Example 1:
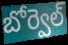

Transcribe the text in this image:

బోర్వెల్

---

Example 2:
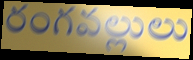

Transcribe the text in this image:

రంగవల్లులు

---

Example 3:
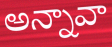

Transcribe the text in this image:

అన్నావా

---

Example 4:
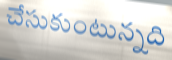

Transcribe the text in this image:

చేసుకుంటున్నది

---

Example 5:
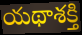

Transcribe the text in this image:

యథాశక్తి